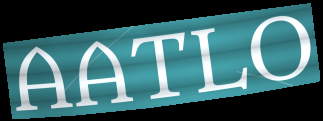
AATLO